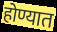
होण्यात